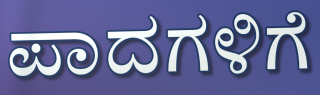
ಪಾದಗಳಿಗೆ